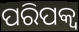
ପରିପକ୍ଵ